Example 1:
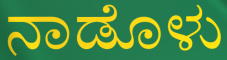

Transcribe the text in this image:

ನಾಡೊಳು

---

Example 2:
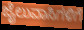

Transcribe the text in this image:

ಜೈಲುವಾಸಿಗಳಿಗೆ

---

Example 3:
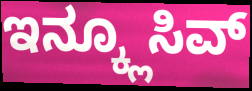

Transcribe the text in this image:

ಇನ್ಕ್ಲೂಸಿವ್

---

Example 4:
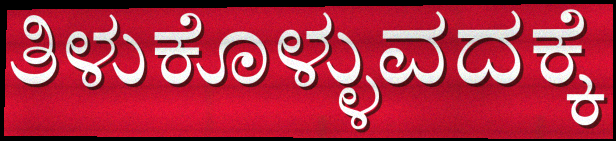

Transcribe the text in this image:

ತಿಳುಕೊಳ್ಳುವದಕ್ಕೆ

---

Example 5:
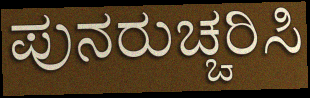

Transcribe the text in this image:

ಪುನರುಚ್ಚರಿಸಿ